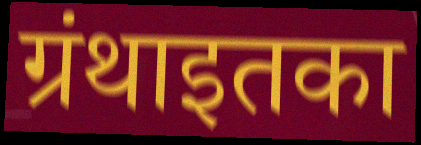
ग्रंथाइतका